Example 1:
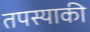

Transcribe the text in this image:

तपस्याकी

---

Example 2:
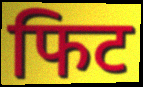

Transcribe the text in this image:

फिट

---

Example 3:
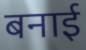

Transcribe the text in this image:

बनाई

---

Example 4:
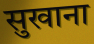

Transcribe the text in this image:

सुखाना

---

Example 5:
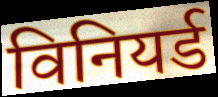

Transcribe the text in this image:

विनियर्ड